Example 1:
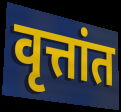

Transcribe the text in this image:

वृत्तांत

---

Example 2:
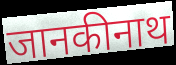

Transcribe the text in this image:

जानकीनाथ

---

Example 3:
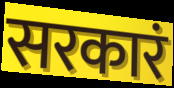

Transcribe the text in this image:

सरकारं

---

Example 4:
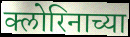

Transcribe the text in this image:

क्लोरिनाच्या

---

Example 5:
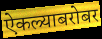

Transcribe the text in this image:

ऐकल्याबरोबर